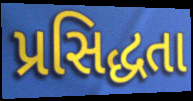
પ્રસિદ્ધતા